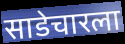
साडेचारला